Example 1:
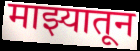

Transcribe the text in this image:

माझ्यातून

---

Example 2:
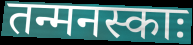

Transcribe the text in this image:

तन्मनस्काः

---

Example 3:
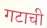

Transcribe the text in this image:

गटाची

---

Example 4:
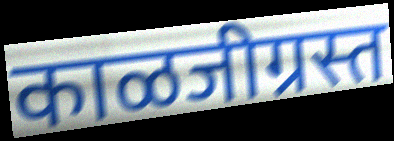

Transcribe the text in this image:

काळजीग्रस्त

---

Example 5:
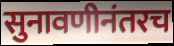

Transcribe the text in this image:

सुनावणीनंतरच